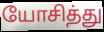
யோசித்து